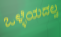
ಒಳ್ಳೆಯದಲ್ವ